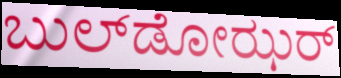
ಬುಲ್‌ಡೋಝರ್